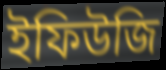
ইফিউজি